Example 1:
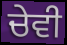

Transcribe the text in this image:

ਚੇਵੀ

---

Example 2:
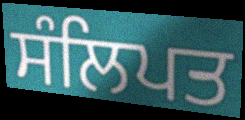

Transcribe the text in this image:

ਸੰਲਿਪਤ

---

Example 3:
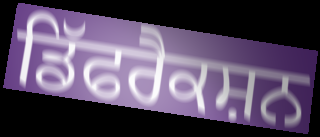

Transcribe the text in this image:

ਡਿੱਫਰੈਕਸ਼ਨ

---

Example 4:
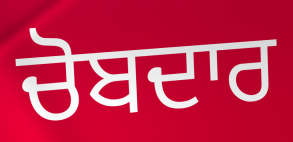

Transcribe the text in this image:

ਚੋਬਦਾਰ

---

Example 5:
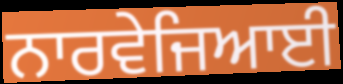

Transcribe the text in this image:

ਨਾਰਵੇਜਿਆਈ